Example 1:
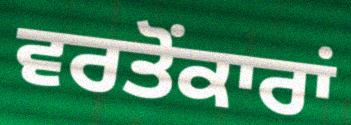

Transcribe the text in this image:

ਵਰਤੋਂਕਾਰਾਂ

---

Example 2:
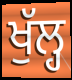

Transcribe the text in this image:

ਖੁੱਲ੍ਹ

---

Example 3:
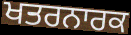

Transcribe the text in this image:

ਖਤਰਨਾਰਕ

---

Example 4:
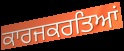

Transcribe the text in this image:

ਕਾਰਜਕਰਤਿਆਂ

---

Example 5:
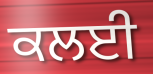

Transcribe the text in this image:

ਕਲਈ